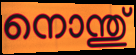
നൊന്തു്